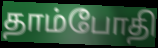
தாம்போதி